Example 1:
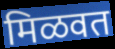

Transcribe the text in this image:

मिळवत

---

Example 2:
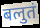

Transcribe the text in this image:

बलुतं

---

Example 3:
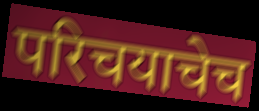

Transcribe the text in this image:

परिचयाचेच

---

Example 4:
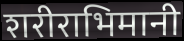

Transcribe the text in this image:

शरीराभिमानी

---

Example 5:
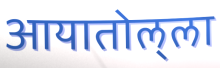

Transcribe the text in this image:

आयातोल्ला